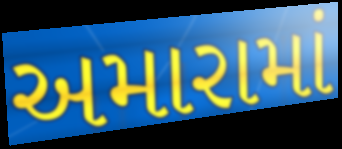
અમારામાં